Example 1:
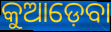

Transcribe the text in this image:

କୁଆଡ଼େବା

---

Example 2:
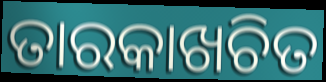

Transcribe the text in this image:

ତାରକାଖଚିତ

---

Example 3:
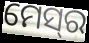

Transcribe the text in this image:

ମେସ୍‌ର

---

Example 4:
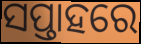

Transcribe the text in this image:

ସପ୍ତାହରେ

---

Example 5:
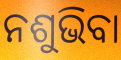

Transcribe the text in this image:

ନଶୁଭିବା